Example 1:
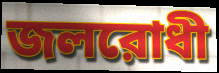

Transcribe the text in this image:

জলরোধী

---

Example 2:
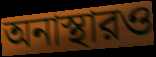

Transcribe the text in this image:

অনাস্থারও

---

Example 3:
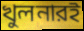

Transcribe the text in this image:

খুলনারই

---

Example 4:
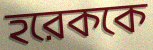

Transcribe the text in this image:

হরেককে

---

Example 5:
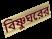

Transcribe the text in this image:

বিষ্ণুঘরের